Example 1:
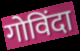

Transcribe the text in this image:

गोविंदा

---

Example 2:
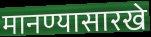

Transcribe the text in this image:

मानण्यासारखे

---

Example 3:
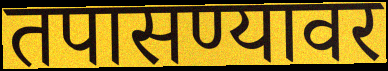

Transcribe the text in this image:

तपासण्यावर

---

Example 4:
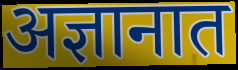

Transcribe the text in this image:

अज्ञानात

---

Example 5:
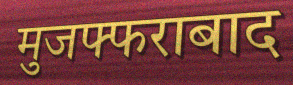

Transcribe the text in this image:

मुजफ्फराबाद